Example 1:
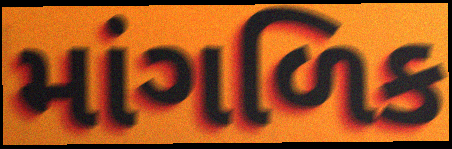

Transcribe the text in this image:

માંગળિક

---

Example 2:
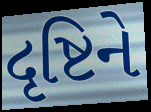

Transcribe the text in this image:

દૃષ્ટિને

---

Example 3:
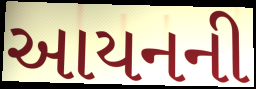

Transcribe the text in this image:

આયનની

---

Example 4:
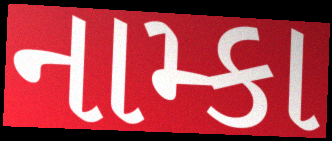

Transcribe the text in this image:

નામ્કા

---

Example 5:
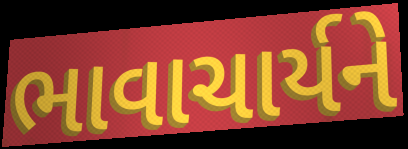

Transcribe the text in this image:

ભાવાચાર્યને